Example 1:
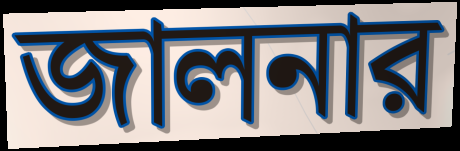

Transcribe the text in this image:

জালনার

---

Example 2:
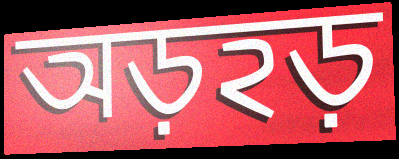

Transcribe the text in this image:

অড়হড়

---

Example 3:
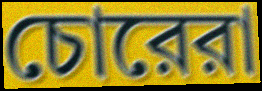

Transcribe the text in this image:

চোরেরা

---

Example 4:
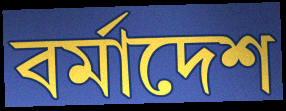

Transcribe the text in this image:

বর্মাদেশ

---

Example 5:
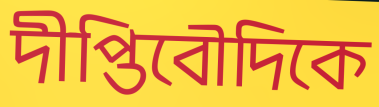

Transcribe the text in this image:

দীপ্তিবৌদিকে